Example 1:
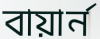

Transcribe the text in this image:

বায়ার্ন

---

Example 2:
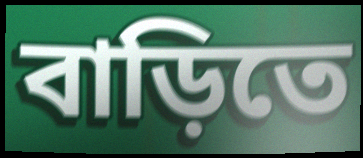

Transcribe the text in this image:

বাড়িতে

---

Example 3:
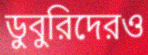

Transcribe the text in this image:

ডুবুরিদেরও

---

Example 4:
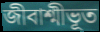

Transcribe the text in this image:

জীবাশ্মীভূত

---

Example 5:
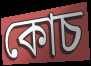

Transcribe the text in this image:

কোচ